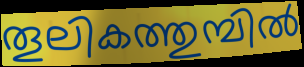
തൂലികത്തുമ്പിൽ